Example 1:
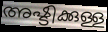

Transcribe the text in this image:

അഷ്ടിക്കുള്ള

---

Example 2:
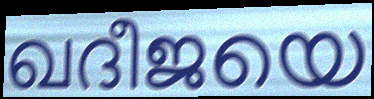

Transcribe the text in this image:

ഖദീജയെ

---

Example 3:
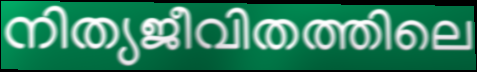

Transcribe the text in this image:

നിത്യജീവിതത്തിലെ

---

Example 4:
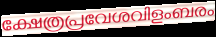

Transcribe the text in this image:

ക്ഷേത്രപ്രവേശവിളംബരം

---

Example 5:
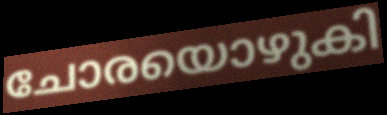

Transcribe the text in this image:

ചോരയൊഴുകി